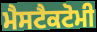
ਮੈਸਟੈਕਟੋਮੀ